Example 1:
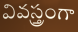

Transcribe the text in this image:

వివస్త్రంగా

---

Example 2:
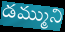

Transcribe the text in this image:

డమ్ముని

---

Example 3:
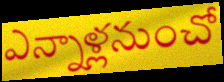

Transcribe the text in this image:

ఎన్నాళ్లనుంచో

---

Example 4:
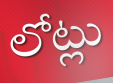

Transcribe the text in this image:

లోట్లు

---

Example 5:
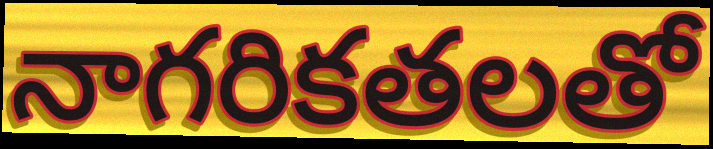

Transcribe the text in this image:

నాగరికతలతో